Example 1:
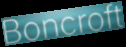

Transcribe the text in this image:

Boncroft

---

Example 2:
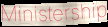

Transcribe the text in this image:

Ministership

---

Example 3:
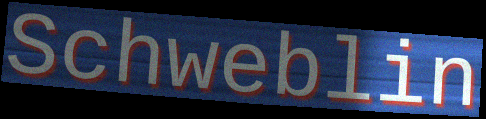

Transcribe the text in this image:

Schweblin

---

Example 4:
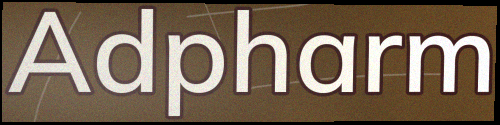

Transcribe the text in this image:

Adpharm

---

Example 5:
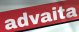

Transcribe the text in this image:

advaita